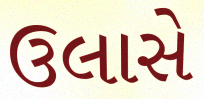
ઉલાસે